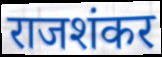
राजशंकर